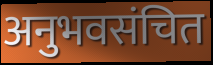
अनुभवसंचित